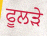
ਫੂਲੜੇ